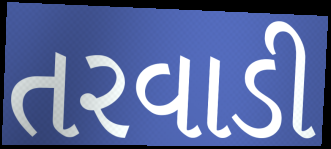
તરવાડી